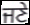
ਜਣੇ